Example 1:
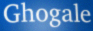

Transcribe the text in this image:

Ghogale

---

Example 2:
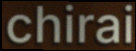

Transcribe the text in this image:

chirai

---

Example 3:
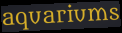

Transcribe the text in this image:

aquariums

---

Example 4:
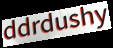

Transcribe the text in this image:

ddrdushy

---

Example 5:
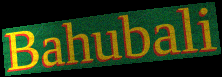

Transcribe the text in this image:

Bahubali